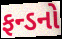
ફન્ડનો